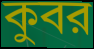
কুবর